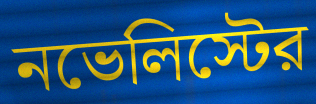
নভেলিস্টের